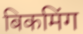
बिकमिंग